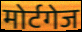
मोर्टगेज